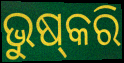
ଭୁଷ୍‍କରି